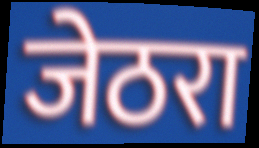
जेठरा